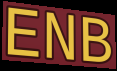
ENB